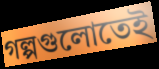
গল্পগুলোতেই